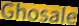
Ghosale